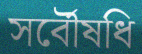
সর্বৌষধি